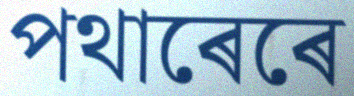
পথাৰেৰে